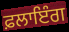
ਫ਼ਲਾਇੰਗ